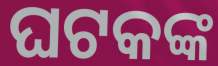
ଘଟକଙ୍କ